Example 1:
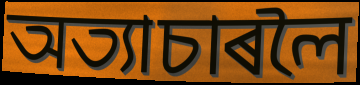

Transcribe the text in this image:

অত্যাচাৰলৈ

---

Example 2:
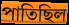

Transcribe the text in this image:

পাতিছিল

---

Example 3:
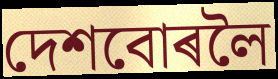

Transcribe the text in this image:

দেশবোৰলৈ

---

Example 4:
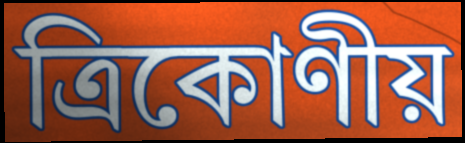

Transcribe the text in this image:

ত্ৰিকোণীয়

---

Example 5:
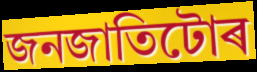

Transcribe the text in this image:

জনজাতিটোৰ